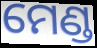
ମେଣ୍ଡ